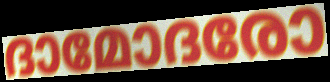
ദാമോദരോ